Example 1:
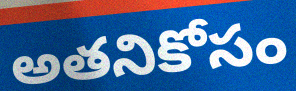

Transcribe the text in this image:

అతనికోసం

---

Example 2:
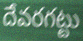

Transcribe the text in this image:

దేవరగట్టు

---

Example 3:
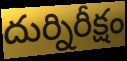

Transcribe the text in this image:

దుర్నిరీక్షం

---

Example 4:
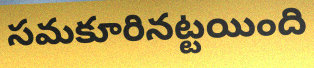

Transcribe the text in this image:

సమకూరినట్టయింది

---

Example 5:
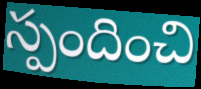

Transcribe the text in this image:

స్పందించి